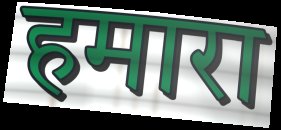
हमारा